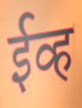
ईव्ह